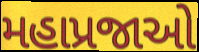
મહાપ્રજાઓ